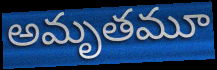
అమృతమూ